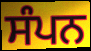
ਸੰਪਨ